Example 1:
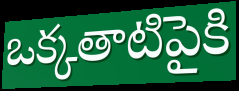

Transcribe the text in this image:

ఒక్కతాటిపైకి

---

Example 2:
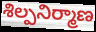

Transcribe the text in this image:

శిల్పనిర్మాణ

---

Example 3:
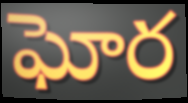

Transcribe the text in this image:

ఘోర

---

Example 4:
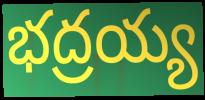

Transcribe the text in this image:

భద్రయ్య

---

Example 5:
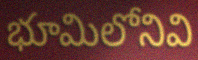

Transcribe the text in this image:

భూమిలోనివి